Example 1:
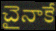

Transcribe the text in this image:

చైనాకే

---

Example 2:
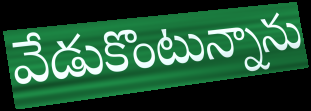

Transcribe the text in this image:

వేడుకొంటున్నాను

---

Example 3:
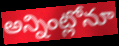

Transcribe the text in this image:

అన్నింట్లోనూ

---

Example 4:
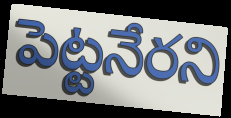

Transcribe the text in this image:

పెట్టనేరని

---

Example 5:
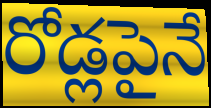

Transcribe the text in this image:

రోడ్లపైనే